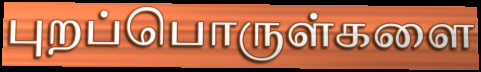
புறப்பொருள்களை